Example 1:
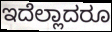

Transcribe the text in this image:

ಇದೆಲ್ಲಾದರೂ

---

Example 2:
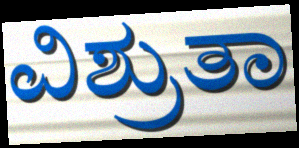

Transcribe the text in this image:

ವಿಶ್ರುತಾ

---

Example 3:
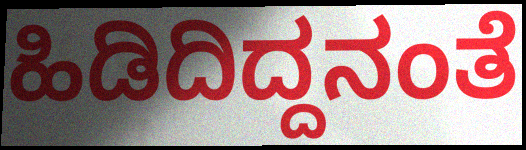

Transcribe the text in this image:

ಹಿಡಿದಿದ್ದನಂತೆ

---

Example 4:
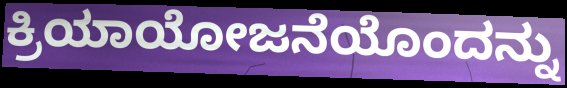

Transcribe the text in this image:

ಕ್ರಿಯಾಯೋಜನೆಯೊಂದನ್ನು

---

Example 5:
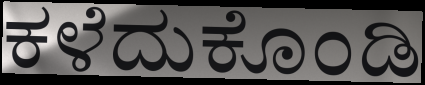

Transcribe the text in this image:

ಕಳೆದುಕೊಂಡಿ